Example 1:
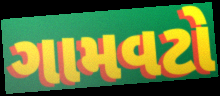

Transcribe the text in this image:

ગામવટો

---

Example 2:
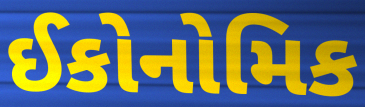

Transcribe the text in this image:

ઈકોનોમિક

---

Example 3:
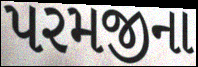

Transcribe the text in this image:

પરમજીના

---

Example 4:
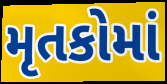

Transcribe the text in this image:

મૃતકોમાં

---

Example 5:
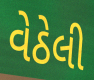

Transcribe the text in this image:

વેઠેલી